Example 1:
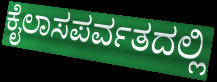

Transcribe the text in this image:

ಕೈಲಾಸಪರ್ವತದಲ್ಲಿ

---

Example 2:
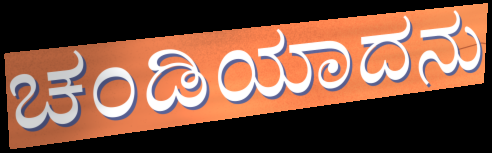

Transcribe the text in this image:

ಚಂಡಿಯಾದನು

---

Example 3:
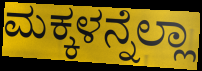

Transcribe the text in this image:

ಮಕ್ಕಳನ್ನೆಲ್ಲಾ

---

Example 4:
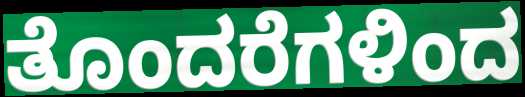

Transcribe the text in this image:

ತೊಂದರೆಗಳಿಂದ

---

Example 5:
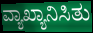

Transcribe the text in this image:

ವ್ಯಾಖ್ಯಾನಿಸಿತು